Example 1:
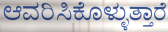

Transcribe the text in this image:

ಆವರಿಸಿಕೊಳ್ಳುತ್ತಾರೆ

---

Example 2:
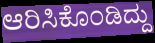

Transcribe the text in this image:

ಆರಿಸಿಕೊಂಡಿದ್ದು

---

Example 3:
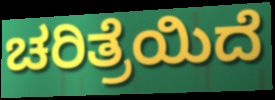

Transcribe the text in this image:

ಚರಿತ್ರೆಯಿದೆ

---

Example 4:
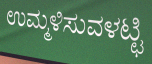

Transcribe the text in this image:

ಉಮ್ಮಳಿಸುವಳಟ್ಟಿ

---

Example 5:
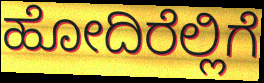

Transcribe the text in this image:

ಹೋದಿರೆಲ್ಲಿಗೆ